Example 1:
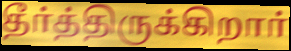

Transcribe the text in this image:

தீர்த்திருக்கிறார்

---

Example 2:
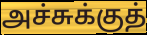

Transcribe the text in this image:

அச்சுக்குத்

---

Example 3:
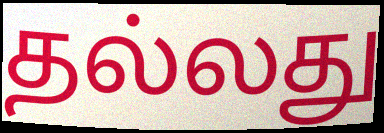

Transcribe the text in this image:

தல்லது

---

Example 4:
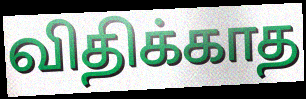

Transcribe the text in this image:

விதிக்காத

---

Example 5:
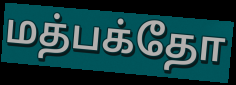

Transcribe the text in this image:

மத்பக்தோ